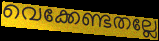
വെക്കേണ്ടതല്ലേ